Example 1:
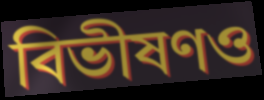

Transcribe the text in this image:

বিভীষণও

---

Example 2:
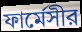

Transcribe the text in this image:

ফার্মেসীর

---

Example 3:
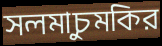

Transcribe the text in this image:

সলমাচুমকির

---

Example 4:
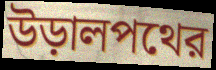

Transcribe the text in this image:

উড়ালপথের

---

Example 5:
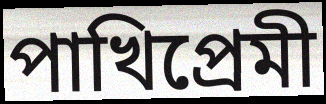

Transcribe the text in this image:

পাখিপ্রেমী